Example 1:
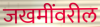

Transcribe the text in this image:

जखमींवरील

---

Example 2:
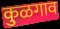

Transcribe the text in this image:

कुळगाव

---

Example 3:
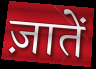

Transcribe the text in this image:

ज़ातें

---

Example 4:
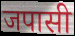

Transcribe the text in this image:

जपासी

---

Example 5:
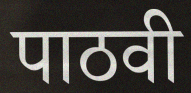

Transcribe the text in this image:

पाठवी